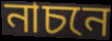
নাচনে